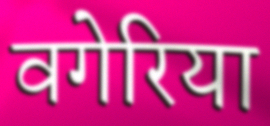
वगेरिया